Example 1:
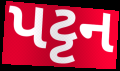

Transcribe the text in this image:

પટ્ટન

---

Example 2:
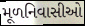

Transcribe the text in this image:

મૂળનિવાસીઓ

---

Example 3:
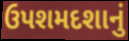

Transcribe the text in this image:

ઉપશમદશાનું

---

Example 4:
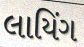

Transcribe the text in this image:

લાયિંગ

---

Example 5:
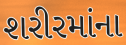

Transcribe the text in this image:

શરીરમાંના